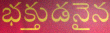
భక్తుడనైన